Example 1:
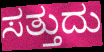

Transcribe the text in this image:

ಸತ್ತುದು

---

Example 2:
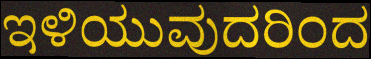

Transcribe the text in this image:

ಇಳಿಯುವುದರಿಂದ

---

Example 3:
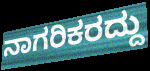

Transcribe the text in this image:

ನಾಗರಿಕರದ್ದು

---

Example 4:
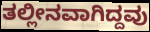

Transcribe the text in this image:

ತಲ್ಲೀನವಾಗಿದ್ದವು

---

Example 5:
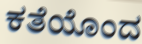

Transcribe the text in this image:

ಕತೆಯೊಂದ